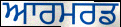
ਆਰਮਰਡ